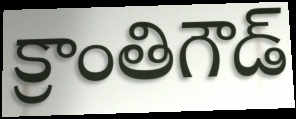
క్రాంతిగౌడ్